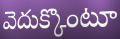
వెదుక్కొంటూ